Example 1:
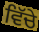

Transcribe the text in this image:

ਵਿੱਚੇ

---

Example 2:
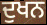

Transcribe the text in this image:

ਦੁਖਨ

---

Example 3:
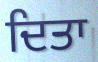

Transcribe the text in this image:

ਦਿਤਾ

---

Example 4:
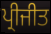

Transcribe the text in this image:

ਪ੍ਰੀਜੀਤ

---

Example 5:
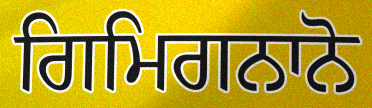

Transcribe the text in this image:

ਗਿਮਿਗਨਾਨੋ